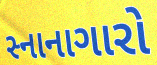
સ્નાનાગારો